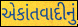
એકાંતવાદીનું